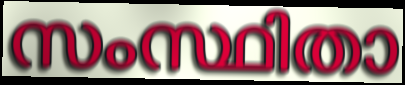
സംസ്ഥിതാ